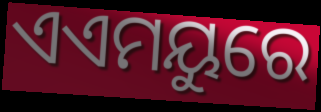
ଏଏମୟୁରେ